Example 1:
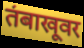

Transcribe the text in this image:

तंबाखूवर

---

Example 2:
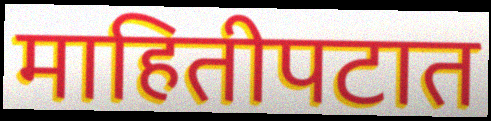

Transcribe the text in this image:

माहितीपटात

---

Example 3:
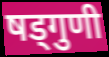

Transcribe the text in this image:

षड्गुणी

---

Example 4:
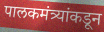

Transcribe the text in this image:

पालकमंत्र्यांकडून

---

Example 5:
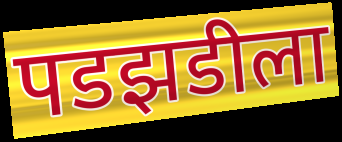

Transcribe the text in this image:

पडझडीला